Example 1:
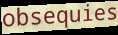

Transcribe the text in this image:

obsequies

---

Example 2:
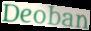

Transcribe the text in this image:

Deoban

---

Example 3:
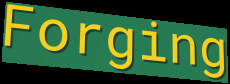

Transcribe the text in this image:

Forging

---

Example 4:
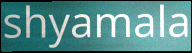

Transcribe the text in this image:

shyamala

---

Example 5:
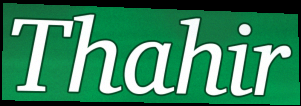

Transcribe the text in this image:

Thahir